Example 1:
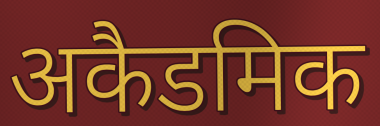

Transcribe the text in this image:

अकैडमिक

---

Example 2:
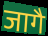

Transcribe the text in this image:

जागै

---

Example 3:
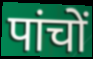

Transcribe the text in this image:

पांचों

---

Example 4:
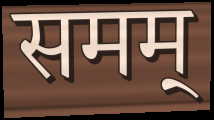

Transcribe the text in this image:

समम्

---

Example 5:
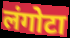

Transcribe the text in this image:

लंगोटा